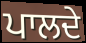
ਪਾਲਦੇ